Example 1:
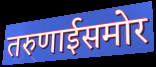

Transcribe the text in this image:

तरुणाईसमोर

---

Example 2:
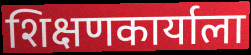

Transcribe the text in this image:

शिक्षणकार्याला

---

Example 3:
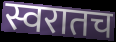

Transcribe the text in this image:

स्वरातच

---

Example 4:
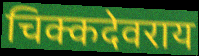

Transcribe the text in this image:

चिक्कदेवराय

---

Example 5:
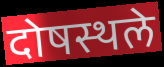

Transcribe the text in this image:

दोषस्थले